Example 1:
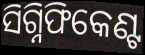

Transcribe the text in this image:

ସିଗ୍ନିଫିକେଣ୍ଟ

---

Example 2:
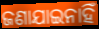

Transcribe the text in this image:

ଜଣାଯାଇନାହିଁ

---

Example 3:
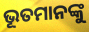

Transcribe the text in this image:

ଭୂତମାନଙ୍କୁ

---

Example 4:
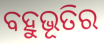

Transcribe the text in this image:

ବହୁଭୂତିର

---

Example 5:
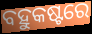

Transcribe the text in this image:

ବହୁକଷ୍ଟରେ